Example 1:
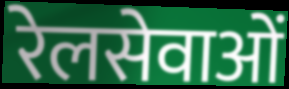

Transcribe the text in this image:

रेलसेवाओं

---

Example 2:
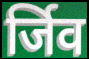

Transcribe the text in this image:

र्जिव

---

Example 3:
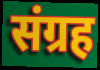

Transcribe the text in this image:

संग्रह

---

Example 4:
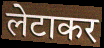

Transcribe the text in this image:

लेटाकर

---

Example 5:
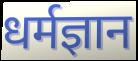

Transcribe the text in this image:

धर्मज्ञान